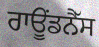
ਰਾਊਂਡਨੈੱਸ